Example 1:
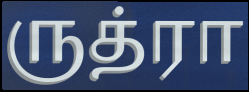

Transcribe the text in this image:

ருத்ரா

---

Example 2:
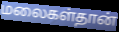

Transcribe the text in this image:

மலைகள்தான்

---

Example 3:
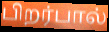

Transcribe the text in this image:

பிறர்பால்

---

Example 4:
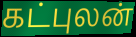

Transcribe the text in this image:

கட்புலன்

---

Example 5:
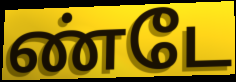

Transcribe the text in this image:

ண்டே